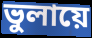
ভুলায়ে